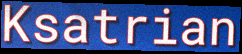
Ksatrian